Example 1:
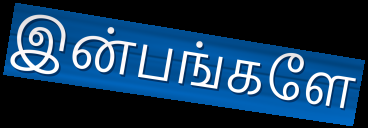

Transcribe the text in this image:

இன்பங்களே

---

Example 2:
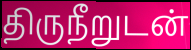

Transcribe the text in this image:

திருநீறுடன்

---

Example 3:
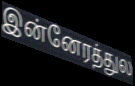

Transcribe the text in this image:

இன்னேரத்துல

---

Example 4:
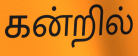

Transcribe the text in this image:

கன்றில்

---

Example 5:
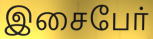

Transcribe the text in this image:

இசைபேர்